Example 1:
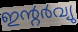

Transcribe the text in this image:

ഇന്റർവ്യു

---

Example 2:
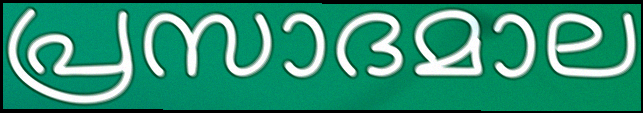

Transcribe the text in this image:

പ്രസാദമാല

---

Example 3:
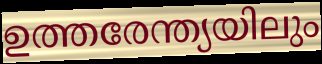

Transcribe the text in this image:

ഉത്തരേന്ത്യയിലും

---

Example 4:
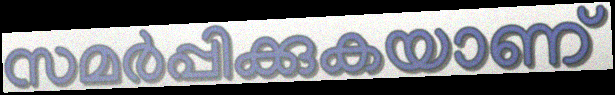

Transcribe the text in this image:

സമർപ്പിക്കുകയാണ്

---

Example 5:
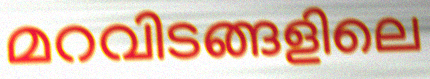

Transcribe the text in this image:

മറവിടങ്ങളിലെ